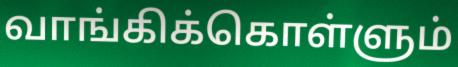
வாங்கிக்கொள்ளும்